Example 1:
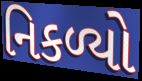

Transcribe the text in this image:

નિકળ્યો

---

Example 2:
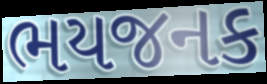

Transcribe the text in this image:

ભયજનક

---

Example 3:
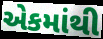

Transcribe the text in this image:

એકમાંથી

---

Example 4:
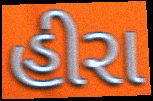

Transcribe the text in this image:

હીરા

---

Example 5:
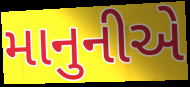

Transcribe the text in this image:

માનુનીએ